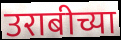
उराबीच्या